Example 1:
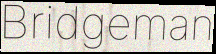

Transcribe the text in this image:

Bridgeman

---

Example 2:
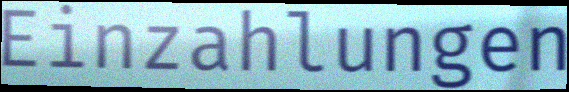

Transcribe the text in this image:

Einzahlungen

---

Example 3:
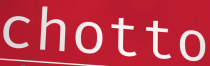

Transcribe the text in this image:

chotto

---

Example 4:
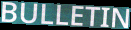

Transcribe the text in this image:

BULLETIN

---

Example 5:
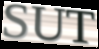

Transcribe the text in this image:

SUT